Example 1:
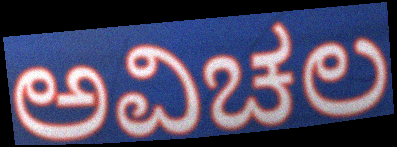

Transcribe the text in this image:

ಅವಿಚಲ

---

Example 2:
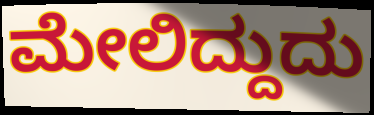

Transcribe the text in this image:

ಮೇಲಿದ್ದುದು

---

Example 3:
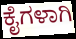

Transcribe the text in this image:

ಕೈಗಳಾಗಿ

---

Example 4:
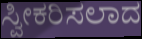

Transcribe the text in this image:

ಸ್ವೀಕರಿಸಲಾದ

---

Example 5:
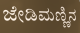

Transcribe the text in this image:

ಜೇಡಿಮಣ್ಣಿನ